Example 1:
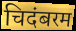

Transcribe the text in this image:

चिदंबरम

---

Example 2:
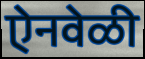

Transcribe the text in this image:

ऐनवेळी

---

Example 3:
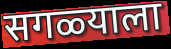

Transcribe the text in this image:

सगळ्याला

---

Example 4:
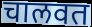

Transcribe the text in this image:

चालवत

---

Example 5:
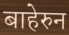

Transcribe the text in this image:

बाहेरुन